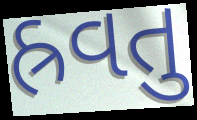
હ્રવતુ